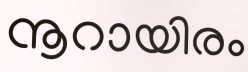
നൂറായിരം